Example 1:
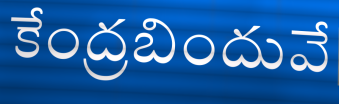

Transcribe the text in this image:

కేంద్రబిందువే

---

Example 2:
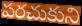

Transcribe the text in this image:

పరచుకుని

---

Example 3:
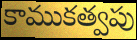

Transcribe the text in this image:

కాముకత్వపు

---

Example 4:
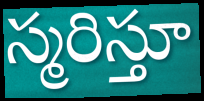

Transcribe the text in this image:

స్మరిస్తూ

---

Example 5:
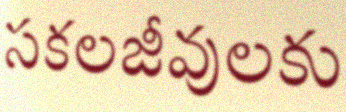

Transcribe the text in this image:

సకలజీవులకు